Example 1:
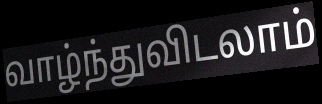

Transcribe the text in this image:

வாழ்ந்துவிடலாம்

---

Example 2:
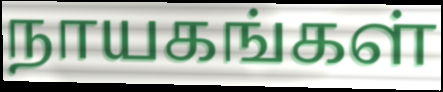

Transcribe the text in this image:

நாயகங்கள்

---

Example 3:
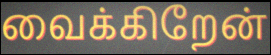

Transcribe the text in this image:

வைக்கிறேன்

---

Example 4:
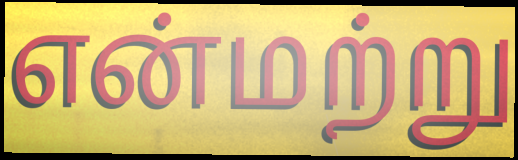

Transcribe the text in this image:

என்மற்று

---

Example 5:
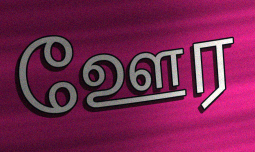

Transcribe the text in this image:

ஊேர